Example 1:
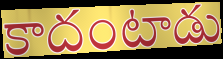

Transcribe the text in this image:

కాదంటాడు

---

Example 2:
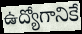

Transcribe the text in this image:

ఉద్యోగానికే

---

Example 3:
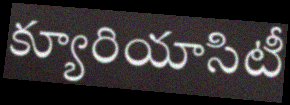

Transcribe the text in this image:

క్యూరియాసిటీ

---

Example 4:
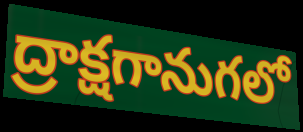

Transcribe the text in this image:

ద్రాక్షగానుగలో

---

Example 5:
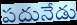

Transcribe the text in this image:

పదునేడు